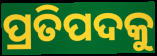
ପ୍ରତିପଦକୁ